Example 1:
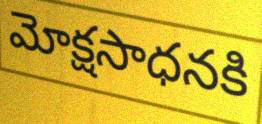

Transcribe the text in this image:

మోక్షసాధనకి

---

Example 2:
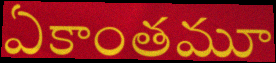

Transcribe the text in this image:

ఏకాంతమూ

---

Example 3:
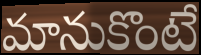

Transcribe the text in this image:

మానుకొంటే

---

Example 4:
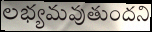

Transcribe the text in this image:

లభ్యమవుతుందని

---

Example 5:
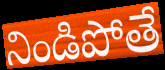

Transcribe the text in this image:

నిండిపోతే